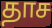
தாச